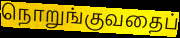
நொறுங்குவதைப்